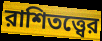
রাশিতত্ত্বের